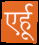
एर्हू